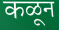
कळून